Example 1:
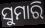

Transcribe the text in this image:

ସୁମାରି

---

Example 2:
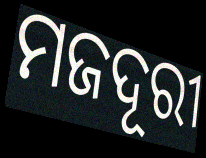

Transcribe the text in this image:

ମଜଦୂରୀ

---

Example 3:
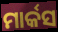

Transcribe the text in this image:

ମାର୍କସ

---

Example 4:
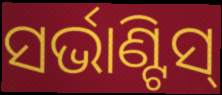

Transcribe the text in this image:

ସର୍ଭାଣ୍ଟିସ୍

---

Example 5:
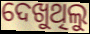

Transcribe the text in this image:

ଦେଖୁଥିଲୁ